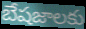
బేషజాలకు